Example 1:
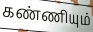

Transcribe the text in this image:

கண்ணியும்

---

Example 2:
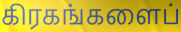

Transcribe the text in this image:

கிரகங்களைப்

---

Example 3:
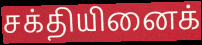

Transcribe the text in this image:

சக்தியினைக்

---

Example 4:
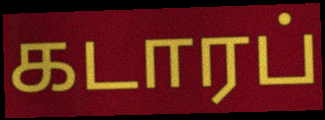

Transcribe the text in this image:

கடாரப்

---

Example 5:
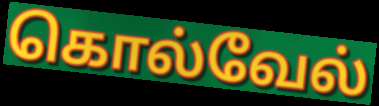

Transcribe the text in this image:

கொல்வேல்